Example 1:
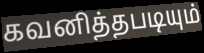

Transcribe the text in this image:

கவனித்தபடியும்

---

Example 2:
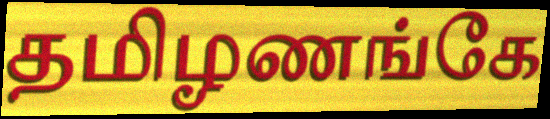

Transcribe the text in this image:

தமிழணங்கே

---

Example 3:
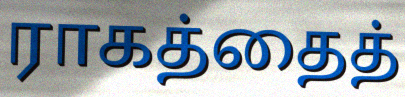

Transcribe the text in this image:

ராகத்தைத்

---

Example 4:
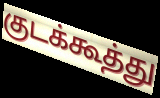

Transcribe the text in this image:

குடக்கூத்து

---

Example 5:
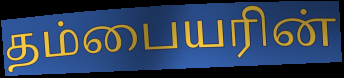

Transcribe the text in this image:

தம்பையரின்